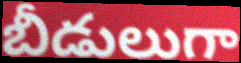
బీడులుగా